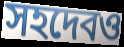
সহদেবও